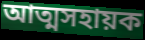
আত্মসহায়ক